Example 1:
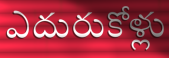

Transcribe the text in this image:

ఎదురుకోళ్లు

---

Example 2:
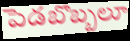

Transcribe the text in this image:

పెడబొబ్బలూ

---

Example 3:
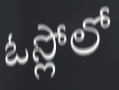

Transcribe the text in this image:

ఓస్లోలో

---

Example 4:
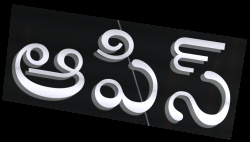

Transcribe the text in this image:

ఆపిస్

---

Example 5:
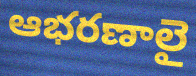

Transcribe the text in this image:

ఆభరణాలై